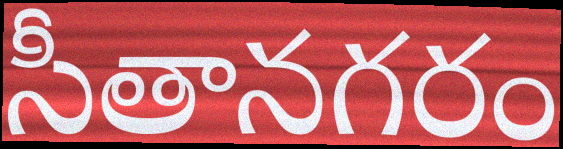
సీతానగరం